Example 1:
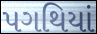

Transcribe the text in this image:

પગથિયાં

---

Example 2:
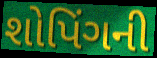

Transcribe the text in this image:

શોપિંગની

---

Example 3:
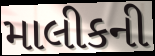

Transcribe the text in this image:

માલીકની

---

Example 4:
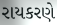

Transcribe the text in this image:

રાયકરણે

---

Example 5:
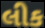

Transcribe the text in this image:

લીક